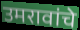
उमरावांचे